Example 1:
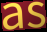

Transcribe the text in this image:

as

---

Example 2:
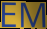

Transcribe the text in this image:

EM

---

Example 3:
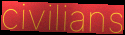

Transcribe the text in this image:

civilians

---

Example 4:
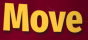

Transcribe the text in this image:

Move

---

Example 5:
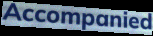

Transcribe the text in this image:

Accompanied